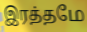
இரத்தமே